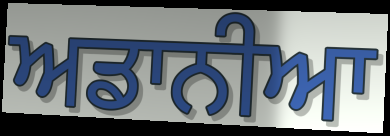
ਅਡਾਨੀਆ